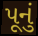
પૂનું